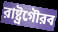
রাষ্ট্রগৌরব